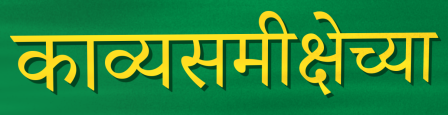
काव्यसमीक्षेच्या